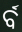
ର୍ବ